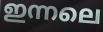
ഇന്നലെ